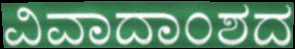
ವಿವಾದಾಂಶದ